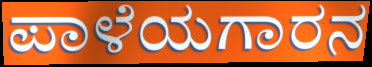
ಪಾಳೆಯಗಾರನ